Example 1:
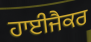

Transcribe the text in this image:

ਹਾਈਜੈਕਰ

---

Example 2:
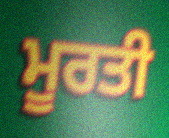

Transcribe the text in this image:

ਮੂਰਤੀ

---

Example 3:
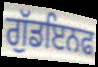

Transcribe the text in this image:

ਗੁੱਡਇਨਫ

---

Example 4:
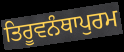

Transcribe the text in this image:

ਤਿਰੂਵਨੰਥਾਪੁਰਮ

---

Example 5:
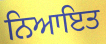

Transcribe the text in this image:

ਨਿਆਇਤ